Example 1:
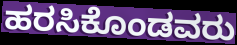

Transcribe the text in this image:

ಹರಸಿಕೊಂಡವರು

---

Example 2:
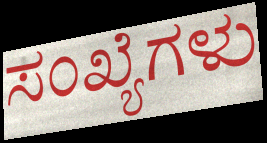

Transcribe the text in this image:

ಸಂಖ್ಯೆಗಳು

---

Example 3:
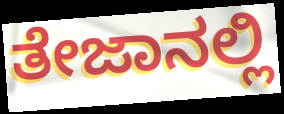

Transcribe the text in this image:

ತೇಜಾನಲ್ಲಿ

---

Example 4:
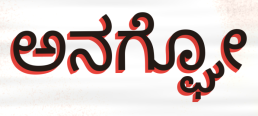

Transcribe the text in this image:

ಅನಗ್ಘೋ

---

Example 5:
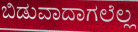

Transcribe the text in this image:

ಬಿಡುವಾದಾಗಲೆಲ್ಲ